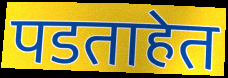
पडताहेत